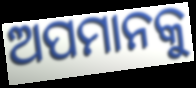
ଅପମାନକୁ